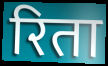
रिता